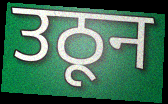
उठून